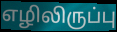
எழிலிருப்பு